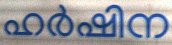
ഹർഷിന